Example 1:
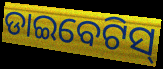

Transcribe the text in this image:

ଡାଇବେଟିସ୍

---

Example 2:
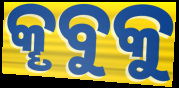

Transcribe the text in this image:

କୄବୁକୁ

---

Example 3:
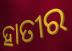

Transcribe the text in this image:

ହାତୀର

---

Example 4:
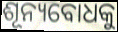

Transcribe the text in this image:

ଶୂନ୍ୟବୋଧକୁ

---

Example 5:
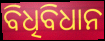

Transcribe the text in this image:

ବିଧିବିଧାନ